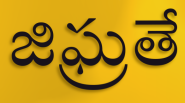
జిఘ్రతే